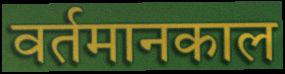
वर्तमानकाल